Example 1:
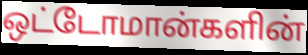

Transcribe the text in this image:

ஒட்டோமான்களின்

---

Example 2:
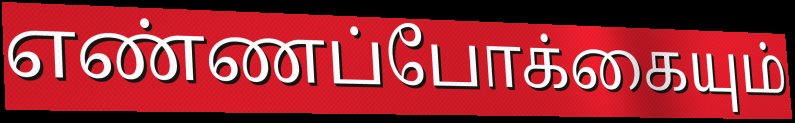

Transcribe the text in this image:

எண்ணப்போக்கையும்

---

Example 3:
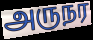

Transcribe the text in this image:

அருநர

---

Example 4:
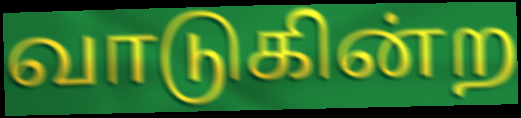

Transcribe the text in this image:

வாடுகின்ற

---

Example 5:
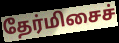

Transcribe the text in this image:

தேர்மிசைச்